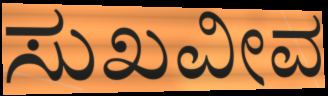
ಸುಖವೀವ